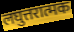
लघुत्तरात्मक